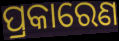
ପ୍ରକାରେଣ